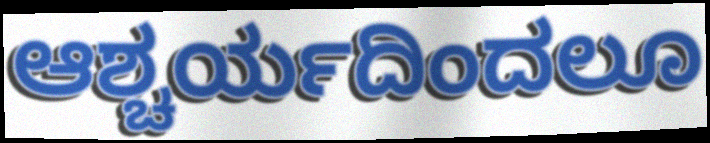
ಆಶ್ಚರ್ಯದಿಂದಲೂ